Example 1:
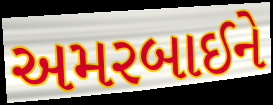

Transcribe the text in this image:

અમરબાઈને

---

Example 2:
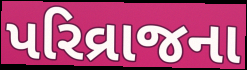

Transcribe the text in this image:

પરિવ્રાજના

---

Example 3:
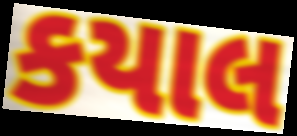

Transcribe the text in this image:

કયાલ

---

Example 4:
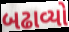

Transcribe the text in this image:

બઢાવ્યો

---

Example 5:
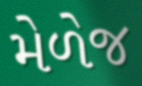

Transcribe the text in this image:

મેળેજ